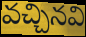
వచ్చినవి